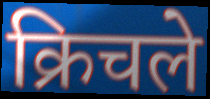
क्रिचले